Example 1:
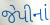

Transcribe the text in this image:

જેપીનાં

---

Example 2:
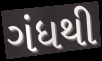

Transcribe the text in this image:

ગંધથી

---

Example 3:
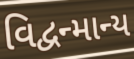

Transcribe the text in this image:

વિદ્વન્માન્ય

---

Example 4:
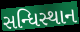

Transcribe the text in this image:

સન્ધિસ્થાન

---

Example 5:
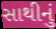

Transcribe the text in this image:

સાથીનું